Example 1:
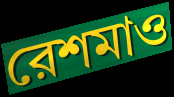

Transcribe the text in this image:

রেশমাও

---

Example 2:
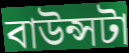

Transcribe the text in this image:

বাউন্সটা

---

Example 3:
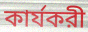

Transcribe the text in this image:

কার্যকরী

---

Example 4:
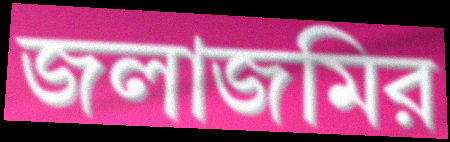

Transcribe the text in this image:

জলাজমির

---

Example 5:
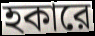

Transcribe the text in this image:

হকারে